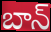
బాన్